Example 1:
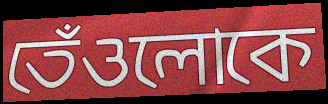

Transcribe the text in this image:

তেঁওলোকে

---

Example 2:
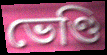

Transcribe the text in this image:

ভেণ্ডি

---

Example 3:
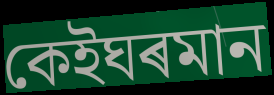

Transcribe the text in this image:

কেইঘৰমান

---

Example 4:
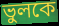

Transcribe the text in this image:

ভুলকে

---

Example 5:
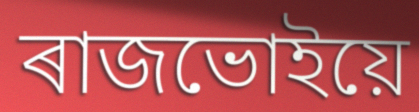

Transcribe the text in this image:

ৰাজভোইয়ে